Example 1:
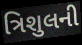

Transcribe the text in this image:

ત્રિશુલની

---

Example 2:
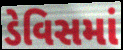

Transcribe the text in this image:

ડેવિસમાં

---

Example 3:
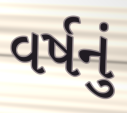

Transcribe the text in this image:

વર્ષનું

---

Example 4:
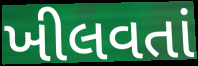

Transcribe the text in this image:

ખીલવતાં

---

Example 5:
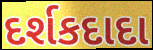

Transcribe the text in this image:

દર્શકદાદા